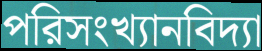
পরিসংখ্যানবিদ্যা